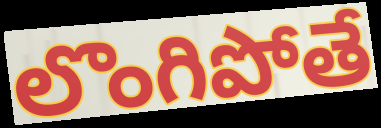
లొంగిపోతే